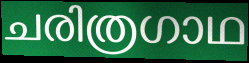
ചരിത്രഗാഥ